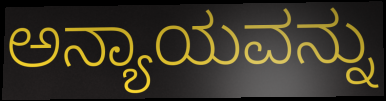
ಅನ್ಯಾಯವನ್ನು